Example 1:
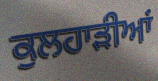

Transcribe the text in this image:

ਕੁਲਹਾੜੀਆਂ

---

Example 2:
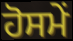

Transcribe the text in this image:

ਹੋਸਮੇਂ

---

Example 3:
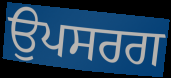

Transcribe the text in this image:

ਉਪਸਰਗ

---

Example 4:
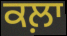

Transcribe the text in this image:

ਕਲ਼ਾ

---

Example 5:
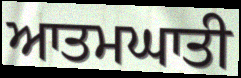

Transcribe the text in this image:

ਆਤਮਘਾਤੀ